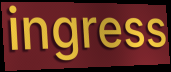
ingress